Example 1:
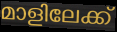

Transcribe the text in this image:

മാളിലേക്ക്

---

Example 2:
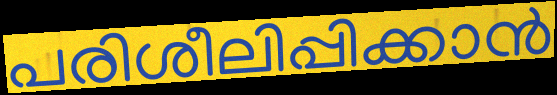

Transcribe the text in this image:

പരിശീലിപ്പിക്കാൻ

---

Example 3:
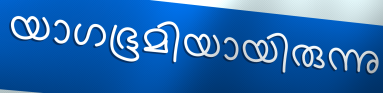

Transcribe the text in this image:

യാഗഭൂമിയായിരുന്നു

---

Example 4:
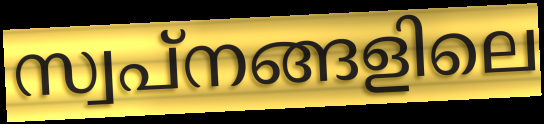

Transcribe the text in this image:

സ്വപ്നങ്ങളിലെ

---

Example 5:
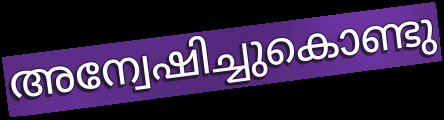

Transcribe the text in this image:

അന്വേഷിച്ചുകൊണ്ടു